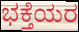
ಭಕ್ತೆಯರ